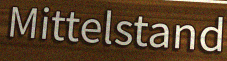
Mittelstand